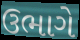
ઉભાગે